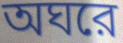
অঘরে